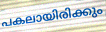
പകലായിരിക്കും